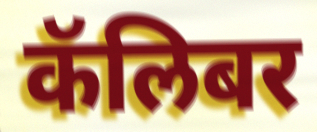
कॅलिबर